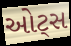
ઓટ્સ